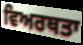
ਵਿਅਰਥਤਾ